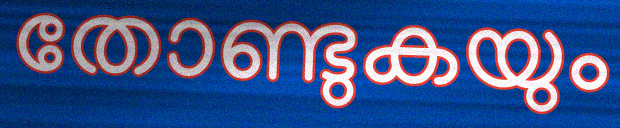
തോണ്ടുകയും